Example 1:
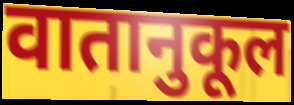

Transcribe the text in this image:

वातानुकूल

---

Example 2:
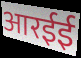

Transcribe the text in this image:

आरईई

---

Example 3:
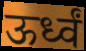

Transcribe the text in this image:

ऊर्ध्वं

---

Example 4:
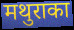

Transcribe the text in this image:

मथुराका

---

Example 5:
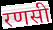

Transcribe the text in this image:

रणसी